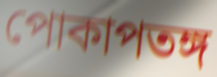
পোকাপতঙ্গ